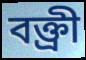
বক্ত্রী